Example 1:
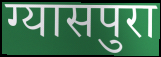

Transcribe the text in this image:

ग्यासपुरा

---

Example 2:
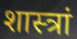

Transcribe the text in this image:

शास्त्रां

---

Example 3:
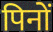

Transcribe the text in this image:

पिनों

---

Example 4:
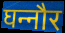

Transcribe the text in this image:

घन्नौर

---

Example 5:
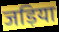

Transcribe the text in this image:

जड़िया